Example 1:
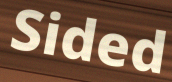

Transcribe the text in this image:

Sided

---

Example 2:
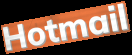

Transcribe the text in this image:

Hotmail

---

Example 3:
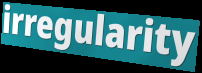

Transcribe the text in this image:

irregularity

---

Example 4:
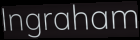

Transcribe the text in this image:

Ingraham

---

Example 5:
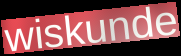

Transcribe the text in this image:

wiskunde